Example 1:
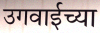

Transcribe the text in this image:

उगवाईच्या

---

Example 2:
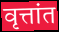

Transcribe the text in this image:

वृत्तांत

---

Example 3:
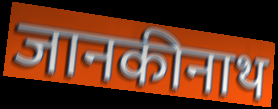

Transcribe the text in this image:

जानकीनाथ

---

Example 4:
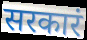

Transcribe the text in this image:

सरकारं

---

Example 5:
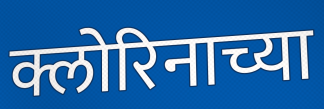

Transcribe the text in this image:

क्लोरिनाच्या